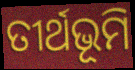
ତୀର୍ଥଭୂମି